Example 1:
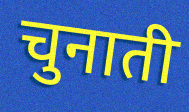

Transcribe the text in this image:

चुनाती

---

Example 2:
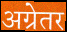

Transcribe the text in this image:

अग्रेतर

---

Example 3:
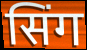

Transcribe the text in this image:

सिंग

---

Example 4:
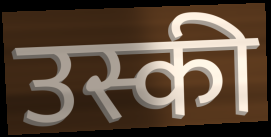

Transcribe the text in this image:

उस्‍की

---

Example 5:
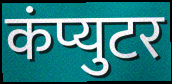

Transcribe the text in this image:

कंप्युटर